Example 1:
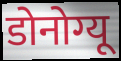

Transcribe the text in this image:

डोनोग्यू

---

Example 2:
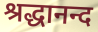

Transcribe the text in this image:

श्रद्धानन्द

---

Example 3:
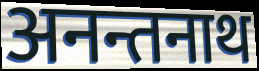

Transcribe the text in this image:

अनन्तनाथ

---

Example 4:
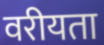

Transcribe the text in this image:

वरीयता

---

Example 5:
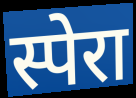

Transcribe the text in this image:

स्पेरा